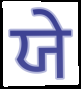
ਯੇ